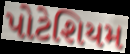
પોટેશિયમ